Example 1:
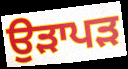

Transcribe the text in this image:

ਉੜਾਪੜ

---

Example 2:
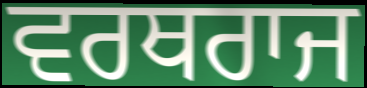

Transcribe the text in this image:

ਵਰਥਰਾਜ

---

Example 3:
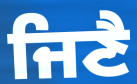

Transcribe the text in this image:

ਜਿਣੈ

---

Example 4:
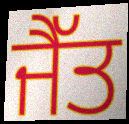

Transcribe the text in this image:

ਜੈੱਤ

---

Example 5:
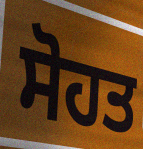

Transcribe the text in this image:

ਸੋਹਤ